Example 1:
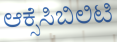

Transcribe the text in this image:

ಆಕ್ಸೆಸಿಬಿಲಿಟಿ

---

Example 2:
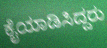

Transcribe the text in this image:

ಕೈಯಾಡಿಸಿದ್ದರು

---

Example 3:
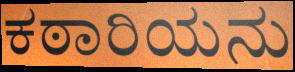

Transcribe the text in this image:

ಕಠಾರಿಯನು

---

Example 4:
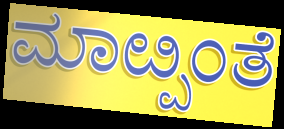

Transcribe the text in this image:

ಮಾೞ್ಪಂತೆ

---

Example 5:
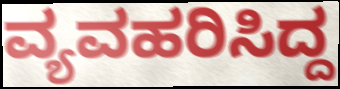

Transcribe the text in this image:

ವ್ಯವಹರಿಸಿದ್ದ